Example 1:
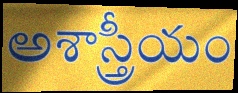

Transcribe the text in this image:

అశాస్త్రీయం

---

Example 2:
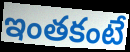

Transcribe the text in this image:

ఇంతకంటే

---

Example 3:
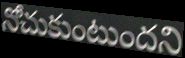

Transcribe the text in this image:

నోచుకుంటుందని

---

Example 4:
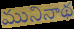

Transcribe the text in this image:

మునినాథ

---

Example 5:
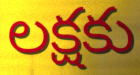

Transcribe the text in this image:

లక్షకు